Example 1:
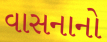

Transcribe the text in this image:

વાસનાનો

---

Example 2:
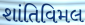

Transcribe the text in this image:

શાંતિવિમલ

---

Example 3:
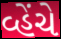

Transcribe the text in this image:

વ્હેંચે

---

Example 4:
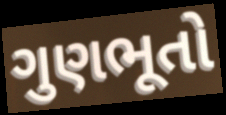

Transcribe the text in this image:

ગુણભૂતો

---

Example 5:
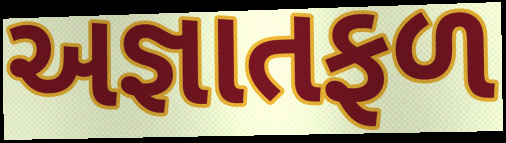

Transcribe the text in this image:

અજ્ઞાતફળ